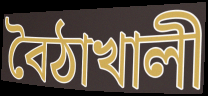
বৈঠাখালী